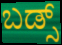
ಬಡ್ಸ್